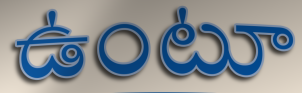
ఉంటూ